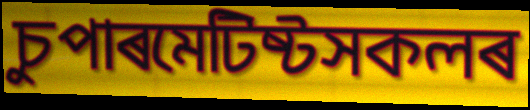
চুপাৰমেটিষ্টসকলৰ